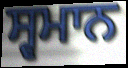
ਸ੍ਵਮਾਨ